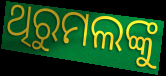
ଥିରୁମଲଙ୍କୁ